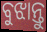
ବୁଝାନ୍ତୁ